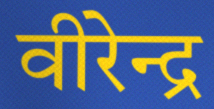
वीरेन्द्र